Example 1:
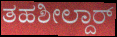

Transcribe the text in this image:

ತಹಶೀಲ್ದಾರ್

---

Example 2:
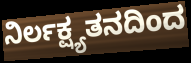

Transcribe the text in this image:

ನಿರ್ಲಕ್ಷ್ಯತನದಿಂದ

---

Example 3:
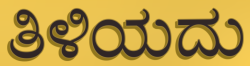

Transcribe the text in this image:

ತಿಳಿಯದು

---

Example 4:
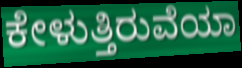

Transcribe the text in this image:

ಕೇಳುತ್ತಿರುವೆಯಾ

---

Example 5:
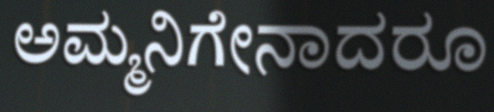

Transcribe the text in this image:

ಅಮ್ಮನಿಗೇನಾದರೂ